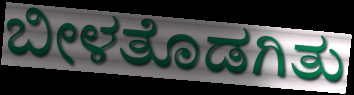
ಬೀಳತೊಡಗಿತು